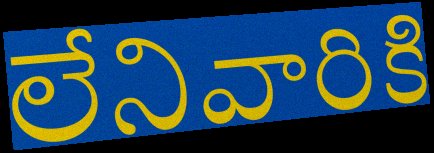
లేనివారికి